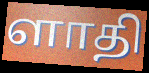
ளாதி